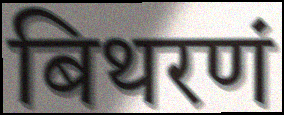
बिथरणं